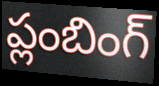
ప్లంబింగ్